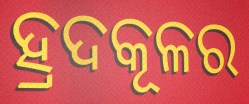
ହ୍ରଦକୂଳର